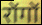
रोंगों